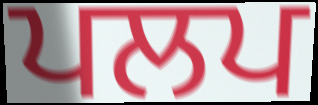
ਪਲਪ